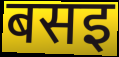
बसइ